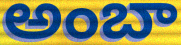
అంబా